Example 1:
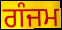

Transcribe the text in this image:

ਗੰਜਮ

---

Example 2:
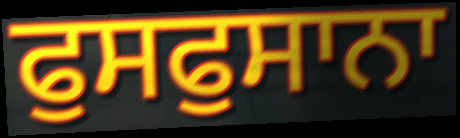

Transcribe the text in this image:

ਫੁਸਫੁਸਾਨਾ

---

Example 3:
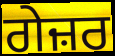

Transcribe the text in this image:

ਗੇਜ਼ਰ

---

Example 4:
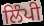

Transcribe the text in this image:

ਲਿੰਪੀ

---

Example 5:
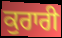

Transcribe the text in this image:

ਕੁਰਾਰੀ